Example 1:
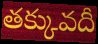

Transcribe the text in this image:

తక్కువదీ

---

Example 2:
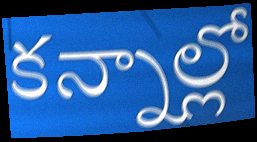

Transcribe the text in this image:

కన్నాల్లో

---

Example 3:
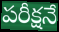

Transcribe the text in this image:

పరీక్షనే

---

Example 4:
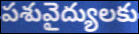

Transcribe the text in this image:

పశువైద్యులకు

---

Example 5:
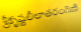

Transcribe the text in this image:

శ్రీకృష్ణలీలాతరంగిణి